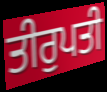
ਤੀਰੁਪਤੀ